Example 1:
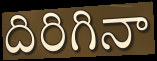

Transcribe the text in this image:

దిరిగినా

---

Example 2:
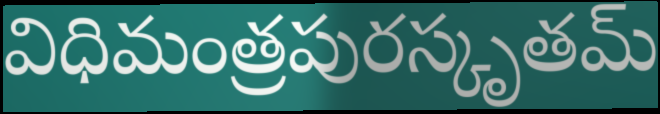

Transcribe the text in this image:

విధిమంత్రపురస్కృతమ్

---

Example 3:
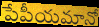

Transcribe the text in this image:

పేపీయమానో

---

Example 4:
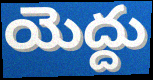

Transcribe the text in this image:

యెద్దు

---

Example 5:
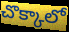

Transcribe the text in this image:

చొక్కాలో